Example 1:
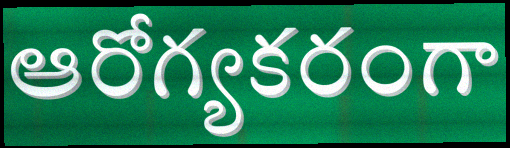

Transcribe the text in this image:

ఆరోగ్యకరంగా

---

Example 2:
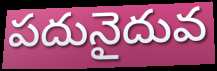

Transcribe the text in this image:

పదునైదువ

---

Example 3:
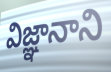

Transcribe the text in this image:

విజ్ఞానాని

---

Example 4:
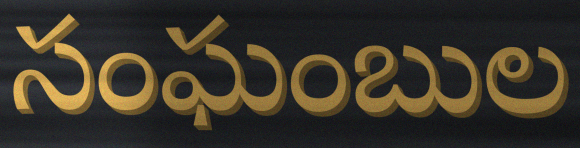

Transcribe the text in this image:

సంఘంబుల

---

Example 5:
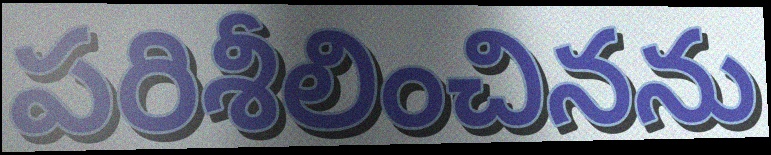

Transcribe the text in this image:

పరిశీలించినను